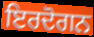
ਇਰਦੋਗਨ